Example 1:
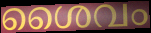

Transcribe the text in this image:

ശൈവം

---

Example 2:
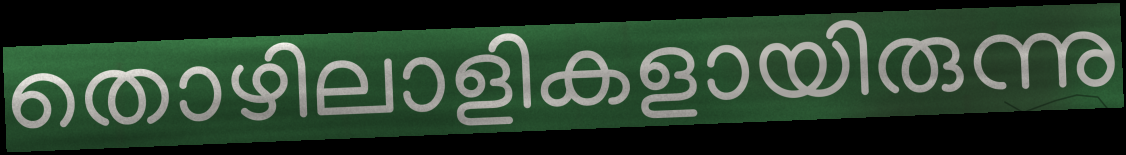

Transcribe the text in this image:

തൊഴിലാളികളായിരുന്നു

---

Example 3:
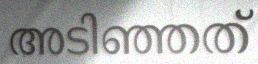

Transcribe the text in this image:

അടിഞ്ഞത്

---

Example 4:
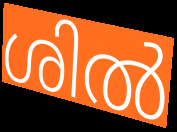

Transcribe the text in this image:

ശിൽ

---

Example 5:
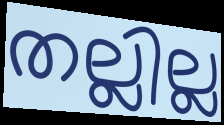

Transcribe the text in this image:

തല്ലില്ല